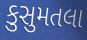
કુસુમતલા